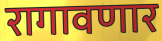
रागावणार